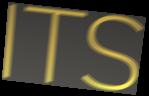
ITS